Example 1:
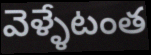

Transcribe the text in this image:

వెళ్ళేటంత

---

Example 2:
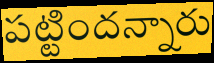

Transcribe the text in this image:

పట్టిందన్నారు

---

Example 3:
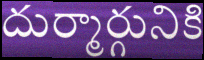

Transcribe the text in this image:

దుర్మార్గునికి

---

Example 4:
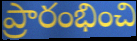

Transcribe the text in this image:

ప్రారంభించి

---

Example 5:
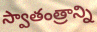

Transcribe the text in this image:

స్వాతంత్రాన్ని